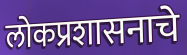
लोकप्रशासनाचे